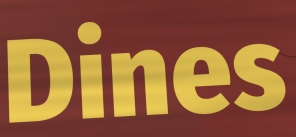
Dines